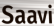
Saavi